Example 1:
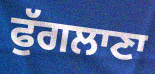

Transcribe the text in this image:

ਫੁੱਗਲਾਣਾ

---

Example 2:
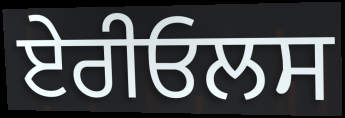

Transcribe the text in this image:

ਏਰੀਓਲਸ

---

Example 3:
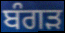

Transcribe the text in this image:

ਬੰਗੜ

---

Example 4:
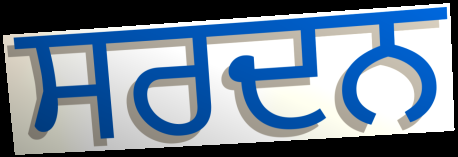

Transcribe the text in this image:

ਸਰਦਨ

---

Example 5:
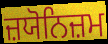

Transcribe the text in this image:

ਜ਼ਯੋਨਿਜ਼ਮ